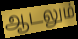
ஆடலும்